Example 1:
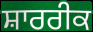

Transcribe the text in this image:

ਸ਼ਾਰਰੀਕ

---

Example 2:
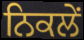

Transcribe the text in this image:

ਨਿਕਲੇਂ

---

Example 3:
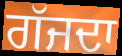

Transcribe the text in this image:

ਗੱਜਦਾ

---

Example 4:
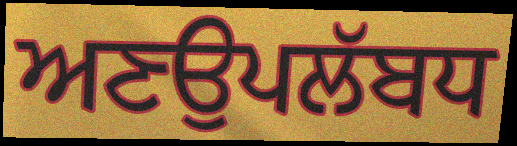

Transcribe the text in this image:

ਅਣਉਪਲੱਬਧ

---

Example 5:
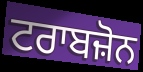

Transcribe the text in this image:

ਟਰਾਬਜ਼ੋਨ